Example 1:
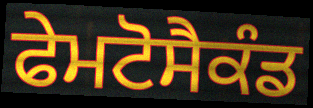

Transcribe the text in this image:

ਫੇਮਟੋਸੈਕੰਡ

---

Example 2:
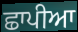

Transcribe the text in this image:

ਛਾਪੀਆ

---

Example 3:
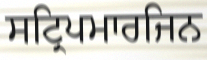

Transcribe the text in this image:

ਸਟ੍ਰਿਪਮਾਰਜਿਨ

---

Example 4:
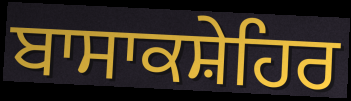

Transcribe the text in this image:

ਬਾਸਾਕਸ਼ੇਹਿਰ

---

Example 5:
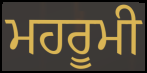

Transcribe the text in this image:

ਮਹਰੂਮੀ